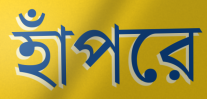
হাঁপরে